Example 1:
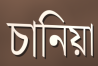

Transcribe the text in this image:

চানিয়া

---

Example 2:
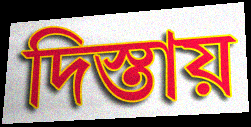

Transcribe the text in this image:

দিস্তায়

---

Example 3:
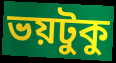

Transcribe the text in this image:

ভয়টুকু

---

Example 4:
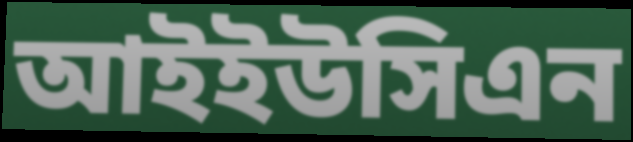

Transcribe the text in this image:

আইইউসিএন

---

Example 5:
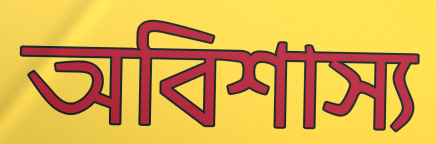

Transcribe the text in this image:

অবিশাস্য